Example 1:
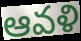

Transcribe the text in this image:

ఆవళి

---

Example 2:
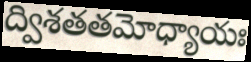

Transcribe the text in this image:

ద్విశతతమోధ్యాయః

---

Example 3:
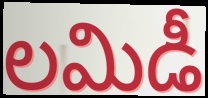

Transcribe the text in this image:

లమిడీ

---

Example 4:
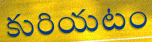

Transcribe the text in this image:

కురియటం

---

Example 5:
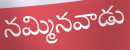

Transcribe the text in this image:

నమ్మినవాడు